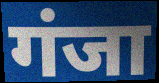
गंजा